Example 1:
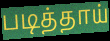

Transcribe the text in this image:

படித்தாய்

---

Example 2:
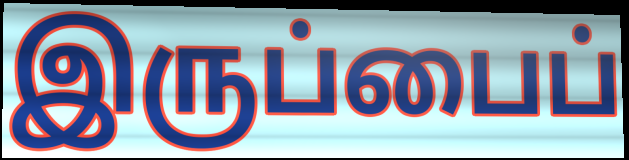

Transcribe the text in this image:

இருப்பைப்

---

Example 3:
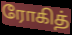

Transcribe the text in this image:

ரோகித்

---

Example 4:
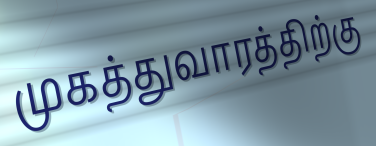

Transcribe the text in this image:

முகத்துவாரத்திற்கு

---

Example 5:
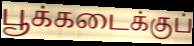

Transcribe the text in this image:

பூக்கடைக்குப்